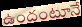
ఉందంటూనే